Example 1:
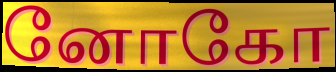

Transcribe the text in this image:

னோகோ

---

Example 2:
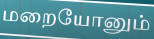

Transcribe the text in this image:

மறையோனும்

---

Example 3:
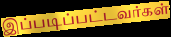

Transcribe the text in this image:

இப்படிப்பட்டவர்கள்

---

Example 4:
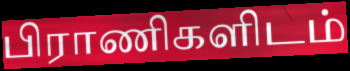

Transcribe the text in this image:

பிராணிகளிடம்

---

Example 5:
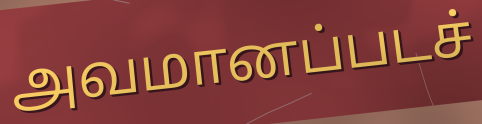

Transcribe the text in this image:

அவமானப்படச்